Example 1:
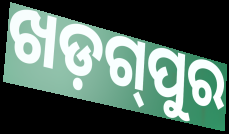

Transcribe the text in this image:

ଖଡ଼ଗ୍‌ପୁର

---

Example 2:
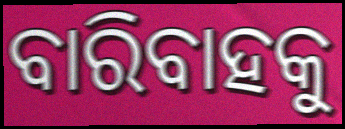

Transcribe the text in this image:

ବାରିବାହକୁ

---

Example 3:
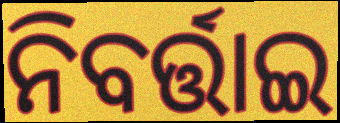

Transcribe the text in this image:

ନିବର୍ତ୍ତାଇ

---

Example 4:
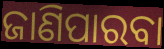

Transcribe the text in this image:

ଜାଣିପାରବା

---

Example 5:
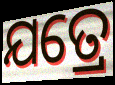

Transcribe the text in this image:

ଯତ୍ରେ